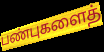
பண்புகளைத்